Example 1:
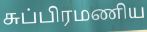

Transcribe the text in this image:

சுப்பிரமணிய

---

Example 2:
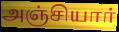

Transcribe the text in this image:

அஞ்சியார்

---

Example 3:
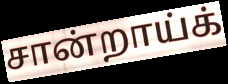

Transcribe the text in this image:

சான்றாய்க்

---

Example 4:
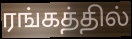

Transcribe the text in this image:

ரங்கத்தில்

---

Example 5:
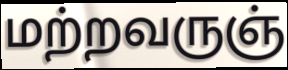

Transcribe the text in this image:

மற்றவருஞ்